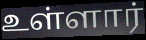
உள்ளார்